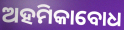
ଅହମିକାବୋଧ